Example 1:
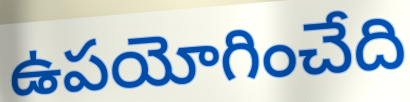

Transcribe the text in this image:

ఉపయోగించేది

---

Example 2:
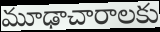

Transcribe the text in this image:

మూఢాచారాలకు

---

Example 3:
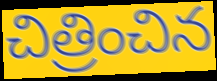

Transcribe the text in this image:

చిత్రించిన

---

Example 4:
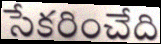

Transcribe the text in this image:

సేకరించేది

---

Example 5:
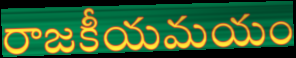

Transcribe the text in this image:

రాజకీయమయం